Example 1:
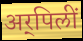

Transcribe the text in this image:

अर्पिलीं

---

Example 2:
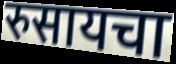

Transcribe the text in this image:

रुसायचा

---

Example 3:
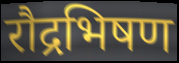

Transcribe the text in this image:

रौद्रभिषण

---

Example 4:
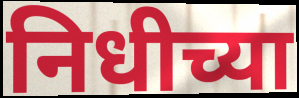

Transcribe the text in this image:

निधीच्या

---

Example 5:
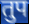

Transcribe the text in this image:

तुप